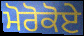
ਮੋਰੋਕੋਏ